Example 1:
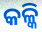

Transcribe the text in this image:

କଳ୍କି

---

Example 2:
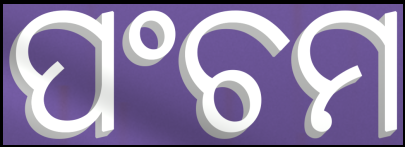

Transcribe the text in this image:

ପଂଚମ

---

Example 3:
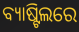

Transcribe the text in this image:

ବ୍ୟାଷ୍ଟିଲରେ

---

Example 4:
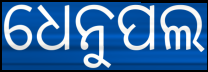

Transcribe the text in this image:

ଧେନୁପଲ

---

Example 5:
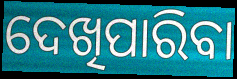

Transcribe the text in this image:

ଦେଖିପାରିବା